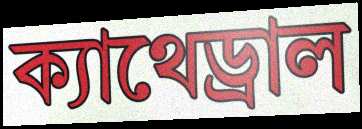
ক্যাথেড্রাল